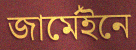
জার্মেইনে